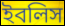
ইবলিস